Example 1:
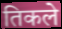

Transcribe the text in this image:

तिकले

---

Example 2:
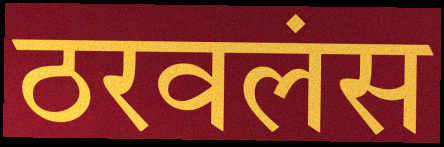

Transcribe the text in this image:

ठरवलंस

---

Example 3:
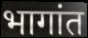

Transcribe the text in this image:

भागांत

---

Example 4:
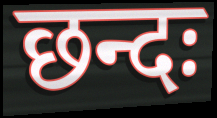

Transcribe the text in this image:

छन्दः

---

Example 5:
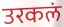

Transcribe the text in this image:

उरकलं